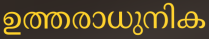
ഉത്തരാധുനിക